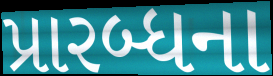
પ્રારબ્ધના